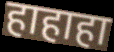
हाहाहा